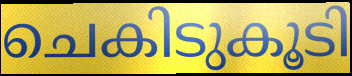
ചെകിടുകൂടി